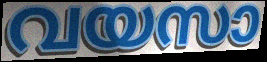
വയസാ